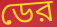
ডের